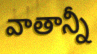
వాతాన్నీ